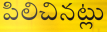
పిలిచినట్లు